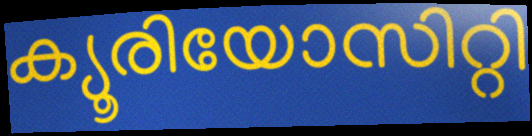
ക്യൂരിയോസിറ്റി